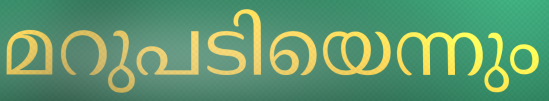
മറുപടിയെന്നും